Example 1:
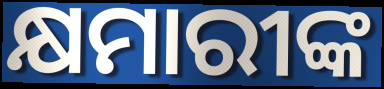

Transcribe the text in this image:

କ୍ଷମାରୀଙ୍କ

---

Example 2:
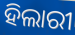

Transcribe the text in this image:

ହିଲାରୀ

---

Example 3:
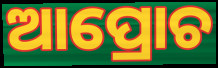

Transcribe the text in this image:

ଆପ୍ରୋଚ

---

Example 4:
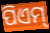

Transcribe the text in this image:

ପିଏମ୍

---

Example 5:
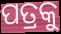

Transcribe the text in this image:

ପତ୍ରକୁ